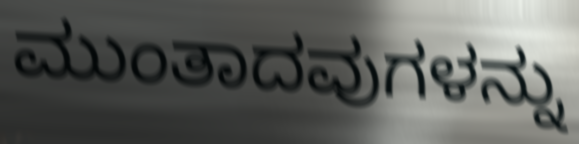
ಮುಂತಾದವುಗಳನ್ನು